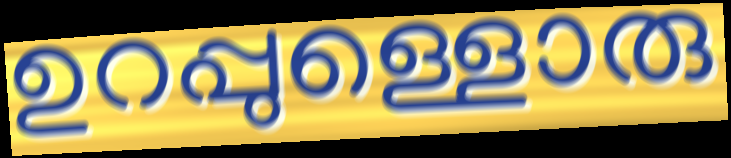
ഉറപ്പുള്ളൊരു